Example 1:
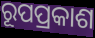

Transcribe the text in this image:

ରୂପପ୍ରକାଶ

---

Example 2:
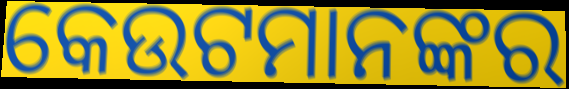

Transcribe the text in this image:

କେଉଟମାନଙ୍କର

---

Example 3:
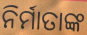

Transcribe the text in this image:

ନିର୍ମାତାଙ୍କ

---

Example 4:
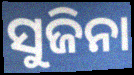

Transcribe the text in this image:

ସୁଜିନା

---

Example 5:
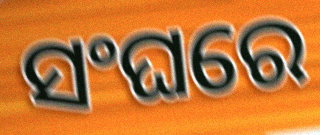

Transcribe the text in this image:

ସଂଘରେ